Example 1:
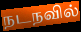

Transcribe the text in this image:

நடநவில்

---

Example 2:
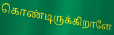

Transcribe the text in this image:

கொண்டிருக்கிறாளே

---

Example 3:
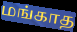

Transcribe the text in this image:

மங்காத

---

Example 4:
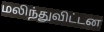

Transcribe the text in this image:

மலிந்துவிட்டன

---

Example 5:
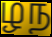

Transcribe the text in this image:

ழந